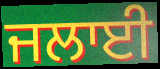
ਜਲਾਈ